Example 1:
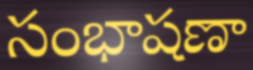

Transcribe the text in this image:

సంభాషణా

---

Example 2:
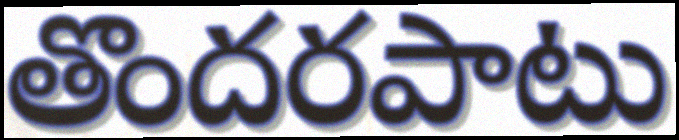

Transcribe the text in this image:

తొందరపాటు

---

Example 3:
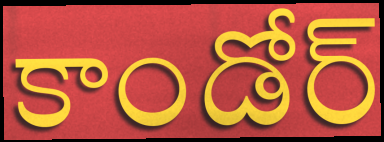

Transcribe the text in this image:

కాండోర్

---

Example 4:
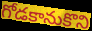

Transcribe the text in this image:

గోడకానుకొని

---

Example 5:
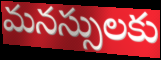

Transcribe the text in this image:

మనస్సులకు